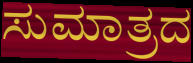
ಸುಮಾತ್ರದ